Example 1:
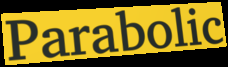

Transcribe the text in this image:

Parabolic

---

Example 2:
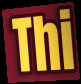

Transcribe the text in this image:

Thi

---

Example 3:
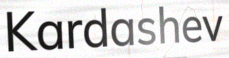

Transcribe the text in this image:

Kardashev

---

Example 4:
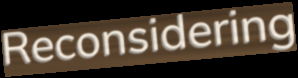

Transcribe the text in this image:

Reconsidering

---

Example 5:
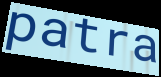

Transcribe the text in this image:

patra